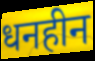
धनहीन